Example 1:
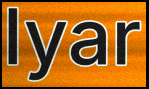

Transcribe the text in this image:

Iyar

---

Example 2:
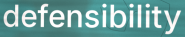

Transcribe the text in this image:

defensibility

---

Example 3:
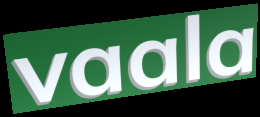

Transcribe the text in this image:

vaala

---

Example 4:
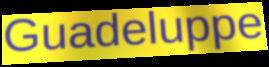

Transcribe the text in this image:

Guadeluppe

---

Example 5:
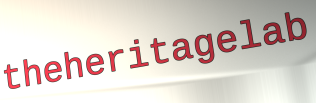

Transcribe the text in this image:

theheritagelab